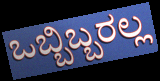
ಒಬ್ಬಿಬ್ಬರಲ್ಲ